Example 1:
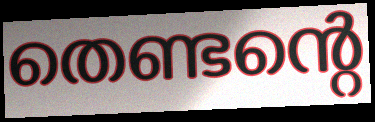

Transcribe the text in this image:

തെണ്ടന്റെ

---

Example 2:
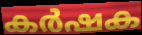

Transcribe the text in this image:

കർഷക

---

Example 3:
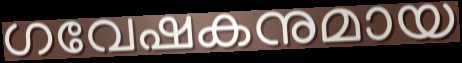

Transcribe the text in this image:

ഗവേഷകനുമായ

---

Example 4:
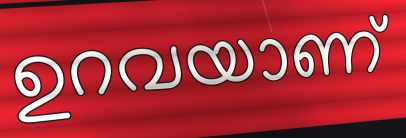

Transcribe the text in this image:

ഉറവയാണ്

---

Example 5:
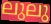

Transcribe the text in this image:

ലുലു